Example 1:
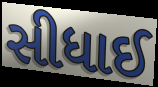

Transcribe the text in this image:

સીધાઈ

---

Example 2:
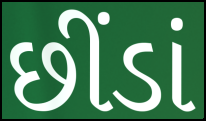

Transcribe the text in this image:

છીંડાં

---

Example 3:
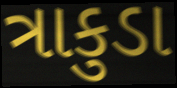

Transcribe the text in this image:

ત્રાકુડા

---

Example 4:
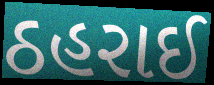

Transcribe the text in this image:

ઠહરાઈ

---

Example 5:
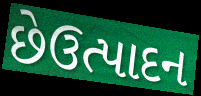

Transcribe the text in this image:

છેઉત્પાદન